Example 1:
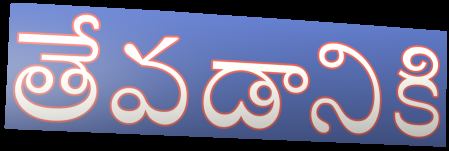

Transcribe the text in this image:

తేవడానికి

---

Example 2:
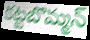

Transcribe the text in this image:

కట్టబొమ్మన్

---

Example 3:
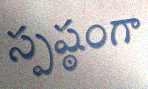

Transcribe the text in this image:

స్పష్ఠంగా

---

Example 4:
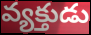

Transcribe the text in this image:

వ్యక్తుడు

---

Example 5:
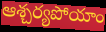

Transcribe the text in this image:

ఆశ్చర్యపోయాం